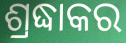
ଶ୍ରଦ୍ଧାକର